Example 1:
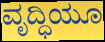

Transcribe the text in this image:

ವೃದ್ಧಿಯೂ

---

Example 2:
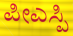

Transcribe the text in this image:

ಪೀಎಸ್ಪಿ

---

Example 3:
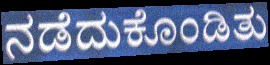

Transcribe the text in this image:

ನಡೆದುಕೊಂಡಿತು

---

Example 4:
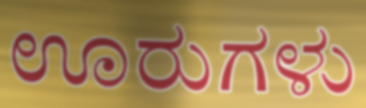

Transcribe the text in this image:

ಊರುಗಳು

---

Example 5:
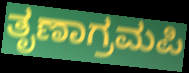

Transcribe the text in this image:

ತೃಣಾಗ್ರಮಪಿ